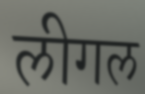
लीगल